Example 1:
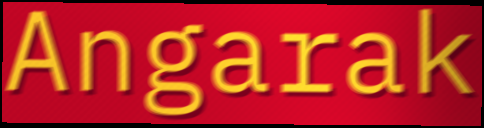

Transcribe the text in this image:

Angarak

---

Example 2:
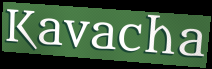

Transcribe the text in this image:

Kavacha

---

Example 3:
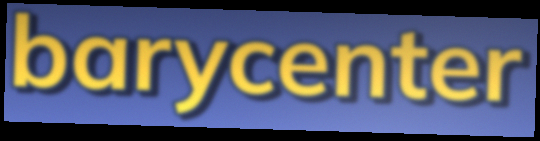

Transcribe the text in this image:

barycenter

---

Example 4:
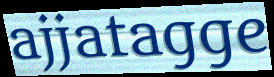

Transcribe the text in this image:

ajjatagge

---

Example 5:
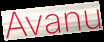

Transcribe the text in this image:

Avanu